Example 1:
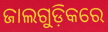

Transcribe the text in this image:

ଜାଲଗୁଡ଼ିକରେ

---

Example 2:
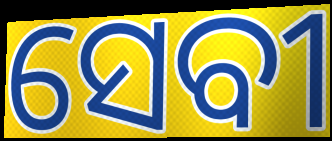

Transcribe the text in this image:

ସେବୀ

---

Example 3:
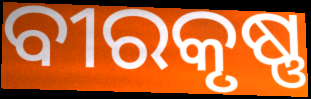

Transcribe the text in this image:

ବୀରକୃଷ୍ଣ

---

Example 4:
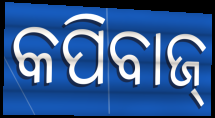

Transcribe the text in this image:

କପିବାଜ୍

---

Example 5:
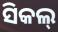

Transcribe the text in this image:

ସିକଲ୍